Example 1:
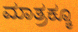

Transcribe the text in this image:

ಮಾತ್ರಕ್ಕೂ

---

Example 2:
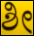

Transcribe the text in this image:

ಶೀ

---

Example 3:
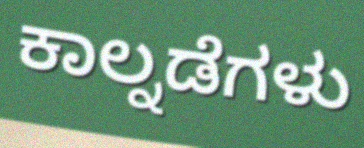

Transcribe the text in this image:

ಕಾಲ್ನಡೆಗಳು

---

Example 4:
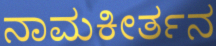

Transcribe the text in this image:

ನಾಮಕೀರ್ತನ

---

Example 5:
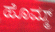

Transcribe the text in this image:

ಹೊಮ್ಮ್